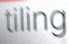
tiling